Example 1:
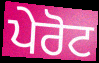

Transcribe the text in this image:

ਪੇਰੋਟ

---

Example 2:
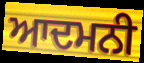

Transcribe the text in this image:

ਆਦਮਨੀ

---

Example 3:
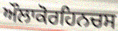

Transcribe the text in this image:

ਔਲਾਕੋਰਹਿਨਚਸ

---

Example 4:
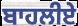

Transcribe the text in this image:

ਬਾਹਲੀਏ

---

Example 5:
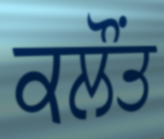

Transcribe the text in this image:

ਕਲੌਂਤ